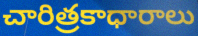
చారిత్రకాధారాలు